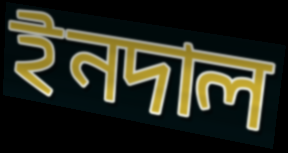
ইনদাল